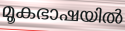
മൂകഭാഷയിൽ